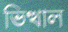
ভিত্থাল